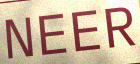
NEER